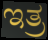
ಇತ್ರ